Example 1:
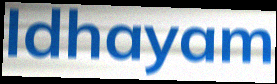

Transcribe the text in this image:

Idhayam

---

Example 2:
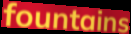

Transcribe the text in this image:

fountains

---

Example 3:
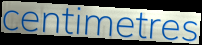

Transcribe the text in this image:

centimetres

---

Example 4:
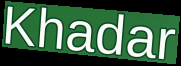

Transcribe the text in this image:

Khadar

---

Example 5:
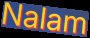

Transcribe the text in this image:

Nalam